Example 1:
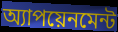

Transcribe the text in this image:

অ্যাপয়েনমেন্ট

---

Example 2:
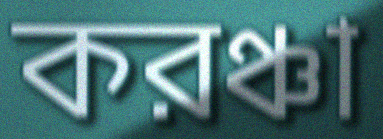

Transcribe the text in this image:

করঞ্চা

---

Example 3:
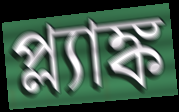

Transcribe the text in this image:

প্ল্যাঙ্ক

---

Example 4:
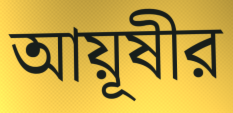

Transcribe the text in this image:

আয়ূষীর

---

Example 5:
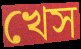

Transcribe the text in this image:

খেস